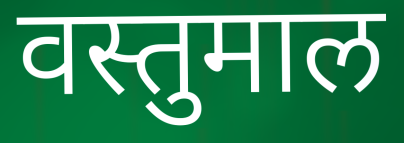
वस्तुमाल